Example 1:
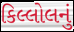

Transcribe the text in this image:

કિલ્લોલનું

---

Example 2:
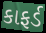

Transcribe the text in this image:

કાફર્ડ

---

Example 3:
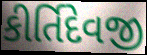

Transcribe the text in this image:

કીર્તિદેવજી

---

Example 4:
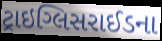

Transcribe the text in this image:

ટ્રાઇગ્લિસરાઈડના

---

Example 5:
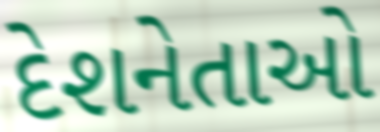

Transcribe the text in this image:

દેશનેતાઓ